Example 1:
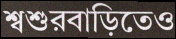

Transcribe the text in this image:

শ্বশুরবাড়িতেও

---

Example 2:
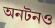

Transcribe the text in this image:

অনটনও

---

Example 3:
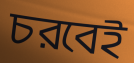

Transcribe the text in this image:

চরবেই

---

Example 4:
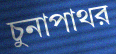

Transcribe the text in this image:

চুনাপাথর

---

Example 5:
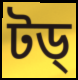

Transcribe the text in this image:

টড্